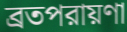
ব্রতপরায়ণা